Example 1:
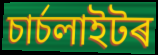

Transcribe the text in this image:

চাৰ্চলাইটৰ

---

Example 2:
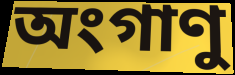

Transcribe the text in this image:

অংগাণু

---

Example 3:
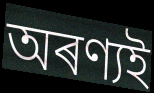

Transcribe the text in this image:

অৰণ্যই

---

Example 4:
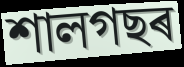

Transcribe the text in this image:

শালগছৰ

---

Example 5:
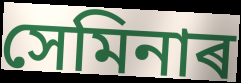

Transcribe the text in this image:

সেমিনাৰ